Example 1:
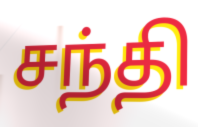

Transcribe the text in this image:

சந்தி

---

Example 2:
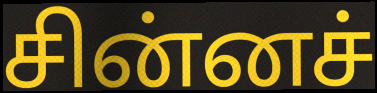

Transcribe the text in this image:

சின்னச்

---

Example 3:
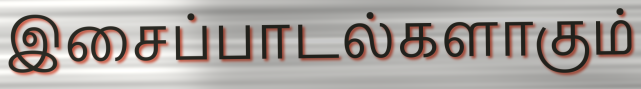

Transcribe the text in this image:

இசைப்பாடல்களாகும்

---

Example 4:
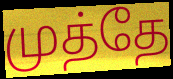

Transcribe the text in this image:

முத்தே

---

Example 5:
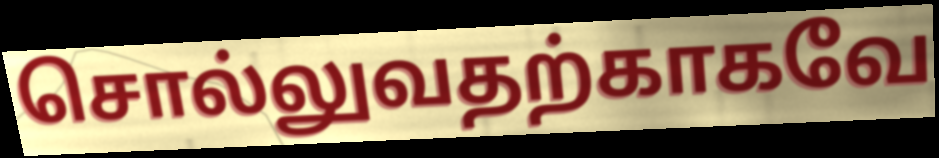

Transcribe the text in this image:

சொல்லுவதற்காகவே